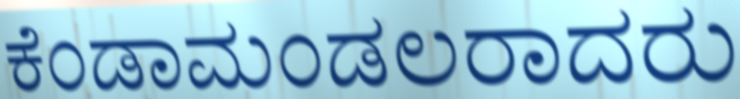
ಕೆಂಡಾಮಂಡಲರಾದರು